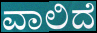
ವಾಲಿದೆ